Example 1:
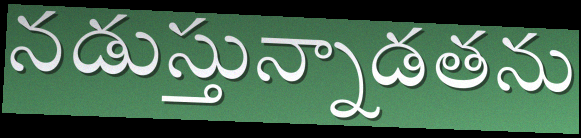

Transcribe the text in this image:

నడుస్తున్నాడతను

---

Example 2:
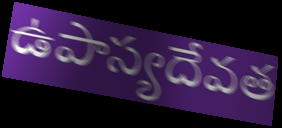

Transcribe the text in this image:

ఉపాస్యదేవత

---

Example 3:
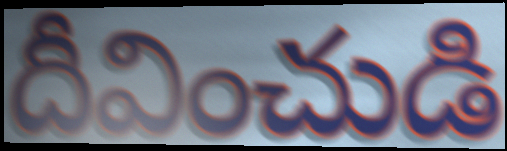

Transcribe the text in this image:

దీవించుడి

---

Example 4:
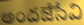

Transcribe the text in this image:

అందజేసేవి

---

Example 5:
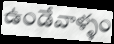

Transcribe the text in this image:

ఉండేవాళ్ళం